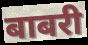
बाबरी